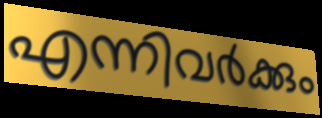
എന്നിവർക്കും